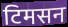
टिमसन